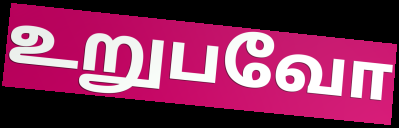
உறுபவோ